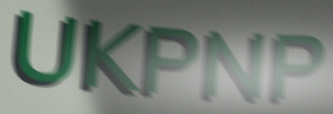
UKPNP